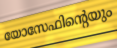
യോസേഫിന്റെയും